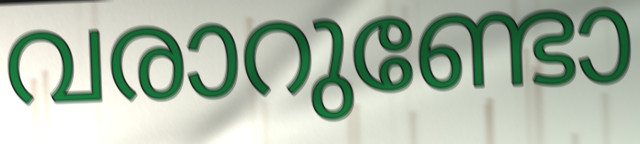
വരാറുണ്ടോ